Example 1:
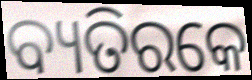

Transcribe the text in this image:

ବ୍ୟତିରକେ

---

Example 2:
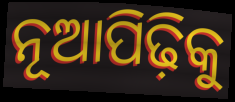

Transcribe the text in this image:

ନୂଆପିଢ଼ିକୁ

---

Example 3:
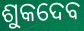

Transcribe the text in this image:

ଶୁକଦେବ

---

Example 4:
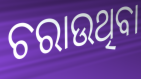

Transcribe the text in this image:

ଚରାଉଥିବା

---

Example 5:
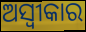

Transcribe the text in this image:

ଅସ୍ୱୀକାର